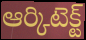
ఆర్కిటెక్ట్